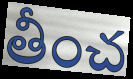
తీంచ